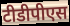
टीडीपीएस